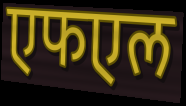
एफएल